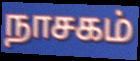
நாசகம்